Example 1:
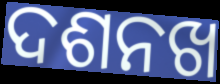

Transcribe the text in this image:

ଦଶନଖ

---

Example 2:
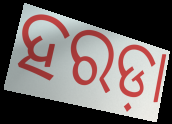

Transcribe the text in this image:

ହରଡ଼ା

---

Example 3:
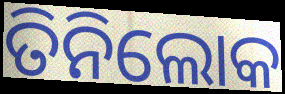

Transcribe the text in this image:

ତିନିଲୋକ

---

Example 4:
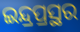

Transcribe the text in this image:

ଇନ୍ଦ୍ରପ୍ରସ୍ଥର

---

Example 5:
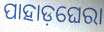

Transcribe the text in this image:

ପାହାଡ଼ଘେରା